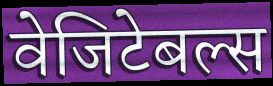
वेजिटेबल्स